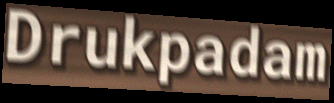
Drukpadam